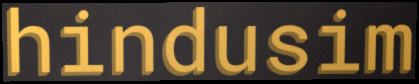
hindusim